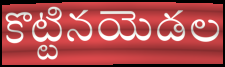
కొట్టినయెడల